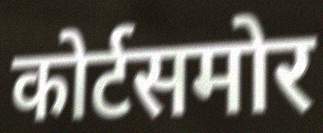
कोर्टसमोर